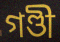
গণ্ডী